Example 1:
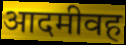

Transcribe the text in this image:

आदमीवह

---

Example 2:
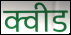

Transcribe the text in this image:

क्वीड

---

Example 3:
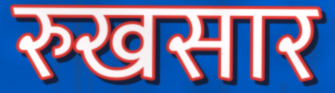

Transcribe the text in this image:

रुखसार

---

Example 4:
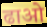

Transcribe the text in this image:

ढाओ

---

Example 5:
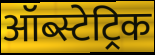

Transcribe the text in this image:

ऑब्स्टेट्रिक